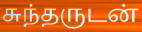
சுந்தருடன்